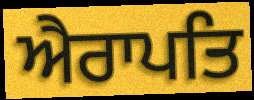
ਐਰਾਪਤਿ